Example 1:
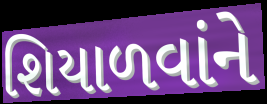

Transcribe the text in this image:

શિયાળવાંને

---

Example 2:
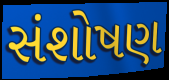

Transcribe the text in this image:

સંશોષણ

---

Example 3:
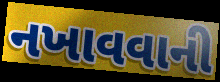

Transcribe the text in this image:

નખાવવાની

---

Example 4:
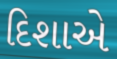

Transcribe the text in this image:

દિશાએ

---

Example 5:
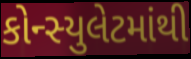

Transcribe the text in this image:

કોન્સ્યુલેટમાંથી